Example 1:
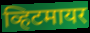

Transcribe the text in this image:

व्हिटमायर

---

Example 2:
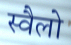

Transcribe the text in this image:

स्वैलो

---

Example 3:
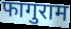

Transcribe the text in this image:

फागुराम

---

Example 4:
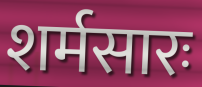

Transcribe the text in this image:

शर्मसारः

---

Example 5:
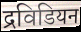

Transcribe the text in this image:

द्रविडियन